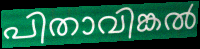
പിതാവിങ്കൽ